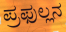
ಪ್ರಫುಲ್ಲನ